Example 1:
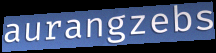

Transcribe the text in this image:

aurangzebs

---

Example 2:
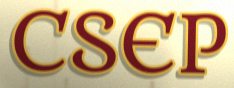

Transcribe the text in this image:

CSEP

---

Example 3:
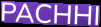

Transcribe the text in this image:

PACHHI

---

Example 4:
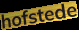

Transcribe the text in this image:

hofstede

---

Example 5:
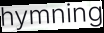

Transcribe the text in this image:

hymning